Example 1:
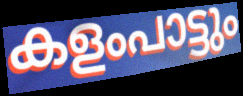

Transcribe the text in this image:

കളംപാട്ടും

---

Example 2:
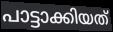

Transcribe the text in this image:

പാട്ടാക്കിയത്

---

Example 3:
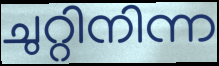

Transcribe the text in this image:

ചുറ്റിനിന്ന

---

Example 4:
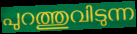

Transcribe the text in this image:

പുറത്തുവിടുന്ന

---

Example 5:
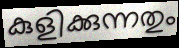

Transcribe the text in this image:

കുളിക്കുന്നതും